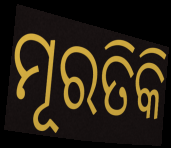
ମୂରତିକି